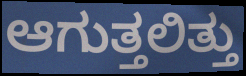
ಆಗುತ್ತಲಿತ್ತು